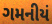
ગમનીયં